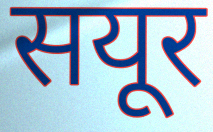
सयूर